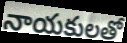
నాయకులతో